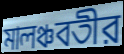
মালঞ্চবতীর